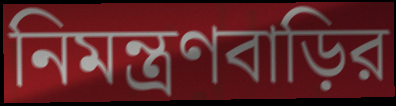
নিমন্ত্রণবাড়ির